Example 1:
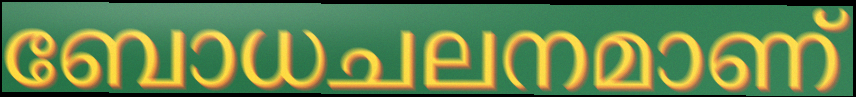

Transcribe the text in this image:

ബോധചലനമാണ്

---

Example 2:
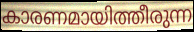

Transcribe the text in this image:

കാരണമായിത്തീരുന്ന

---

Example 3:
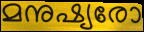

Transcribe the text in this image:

മനുഷ്യരോ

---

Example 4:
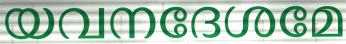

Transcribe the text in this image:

യവനദേശമേ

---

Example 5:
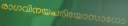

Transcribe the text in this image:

രാഗവിനയപരിയോസാനോ